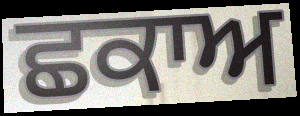
ਛਕਾਅ